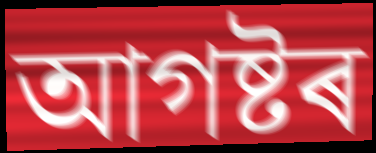
আগষ্টৰ